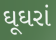
ઘૂઘરાં